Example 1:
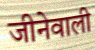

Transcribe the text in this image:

जीनेवाली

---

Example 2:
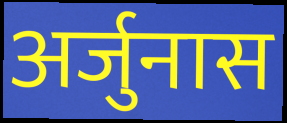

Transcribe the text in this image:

अर्जुनास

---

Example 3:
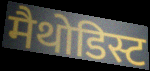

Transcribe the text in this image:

मैथोडिस्ट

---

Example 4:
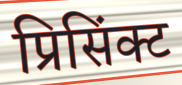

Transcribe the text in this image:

प्रिसिंक्ट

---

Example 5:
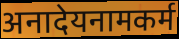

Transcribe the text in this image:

अनादेयनामकर्म